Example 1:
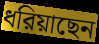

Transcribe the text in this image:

ধরিয়াছেন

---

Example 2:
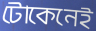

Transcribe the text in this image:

টোকেনেই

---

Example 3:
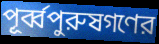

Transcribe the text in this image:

পূর্ব্বপুরুষগণের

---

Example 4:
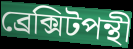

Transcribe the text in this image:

ব্রেক্সিটপন্থী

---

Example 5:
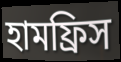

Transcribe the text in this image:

হামফ্রিস